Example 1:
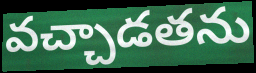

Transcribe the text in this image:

వచ్చాడతను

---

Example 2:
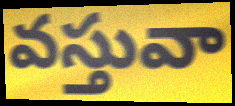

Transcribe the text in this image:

వస్తువా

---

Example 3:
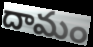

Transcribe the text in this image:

దామం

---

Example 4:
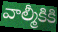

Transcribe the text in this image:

వాల్మీకికి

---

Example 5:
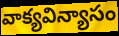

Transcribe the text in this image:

వాక్యవిన్యాసం